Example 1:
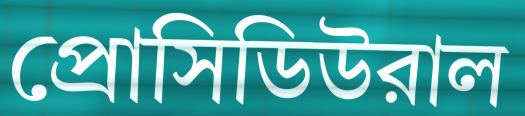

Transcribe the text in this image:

প্রোসিডিউরাল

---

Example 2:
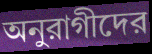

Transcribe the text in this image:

অনুরাগীদের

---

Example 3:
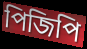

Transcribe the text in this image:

পিজিপি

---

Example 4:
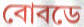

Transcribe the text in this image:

বোবডে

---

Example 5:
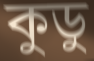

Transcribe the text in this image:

কুডু